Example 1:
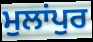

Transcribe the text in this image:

ਮੁਲਾਂਪੁਰ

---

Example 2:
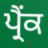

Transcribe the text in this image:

ਪ੍ਰੈਂਕ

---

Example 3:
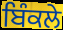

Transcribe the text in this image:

ਬਿੰਕਲੇ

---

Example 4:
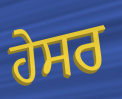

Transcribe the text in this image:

ਹੇਸਰ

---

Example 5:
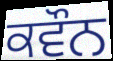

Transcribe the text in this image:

ਕਵੌਨ